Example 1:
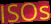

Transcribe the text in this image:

ISOs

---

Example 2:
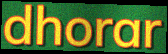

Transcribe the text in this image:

dhorar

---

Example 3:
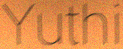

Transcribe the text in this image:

Yuthi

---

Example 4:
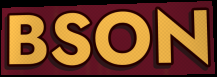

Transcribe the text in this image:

BSON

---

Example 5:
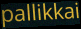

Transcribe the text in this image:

pallikkai